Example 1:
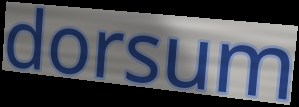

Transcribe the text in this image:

dorsum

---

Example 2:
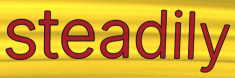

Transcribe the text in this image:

steadily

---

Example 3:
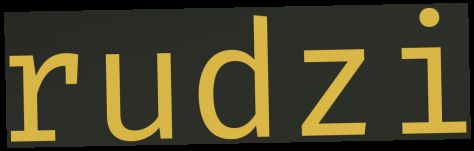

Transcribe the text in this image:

rudzi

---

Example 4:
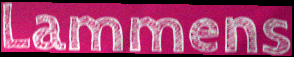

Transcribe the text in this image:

Lammens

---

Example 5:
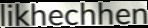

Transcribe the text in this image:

likhechhen